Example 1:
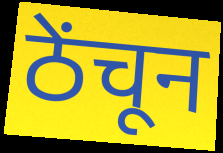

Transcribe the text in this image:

ठेंचून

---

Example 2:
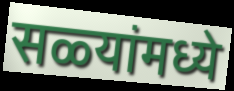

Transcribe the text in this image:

सळ्यांमध्ये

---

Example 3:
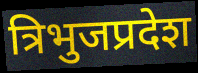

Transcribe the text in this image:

त्रिभुजप्रदेश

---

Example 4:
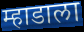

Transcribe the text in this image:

म्हाडाला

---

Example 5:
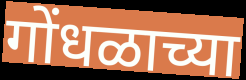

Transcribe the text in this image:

गोंधळाच्या